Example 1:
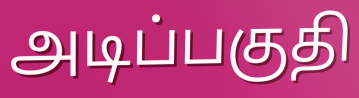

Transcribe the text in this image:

அடிப்பகுதி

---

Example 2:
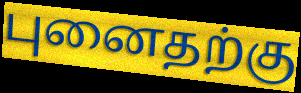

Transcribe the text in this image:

புனைதற்கு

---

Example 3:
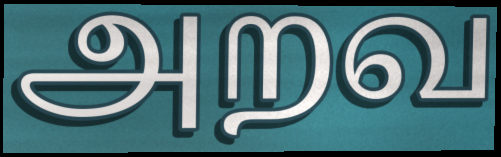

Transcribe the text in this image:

அறவ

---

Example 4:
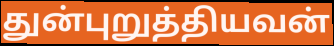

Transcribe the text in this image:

துன்புறுத்தியவன்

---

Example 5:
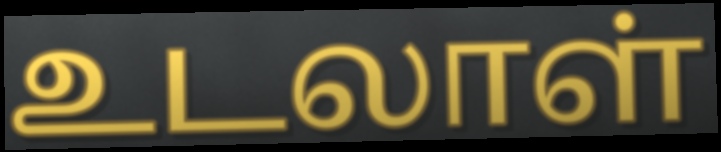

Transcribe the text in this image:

உடலாள்